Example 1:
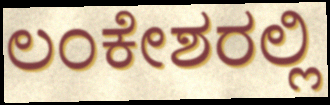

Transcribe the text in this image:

ಲಂಕೇಶರಲ್ಲಿ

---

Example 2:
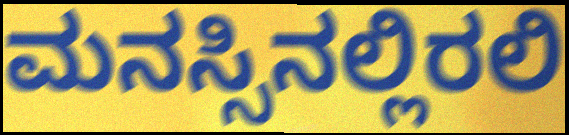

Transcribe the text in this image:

ಮನಸ್ಸಿನಲ್ಲಿರಲಿ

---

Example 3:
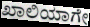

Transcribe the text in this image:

ಖಾಲಿಯಾಗೇ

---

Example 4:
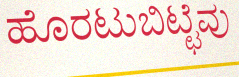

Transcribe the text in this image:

ಹೊರಟುಬಿಟ್ಟೆವು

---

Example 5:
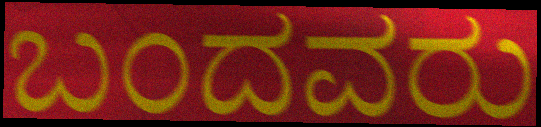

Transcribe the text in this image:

ಬಂದವರು